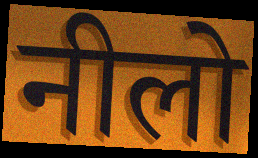
नीलो